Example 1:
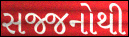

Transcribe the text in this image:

સજ્જનોથી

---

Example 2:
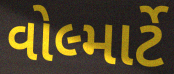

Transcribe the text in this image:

વોલ્માર્ટે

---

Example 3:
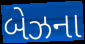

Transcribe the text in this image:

બેઝના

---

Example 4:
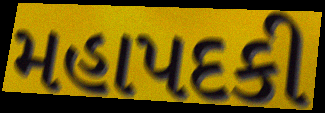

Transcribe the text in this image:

મહાપદકી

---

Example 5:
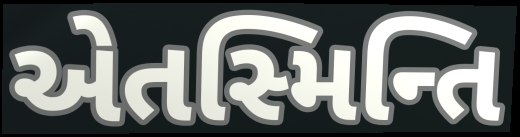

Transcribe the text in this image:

એતસ્મિન્તિ